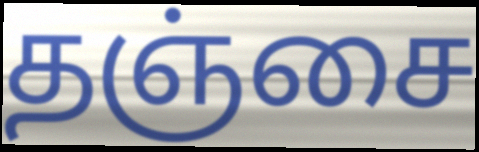
தஞ்சை